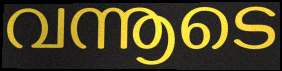
വന്നൂടെ